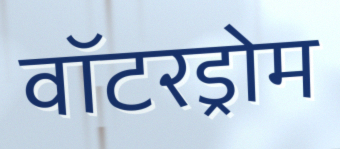
वॉटरड्रोम